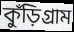
কুঁড়িগ্রাম